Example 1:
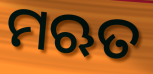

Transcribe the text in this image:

ମଋତ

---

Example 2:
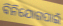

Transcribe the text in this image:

ବିନିଯୋଗପାଇଁ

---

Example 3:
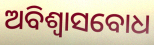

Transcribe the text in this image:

ଅବିଶ୍ୱାସବୋଧ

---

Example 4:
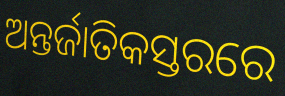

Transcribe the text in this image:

ଅନ୍ତର୍ଜାତିକସ୍ତରରେ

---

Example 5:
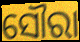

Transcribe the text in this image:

ସୌରା